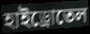
হাইড্রোতেল